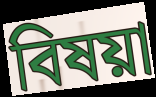
বিষয়া